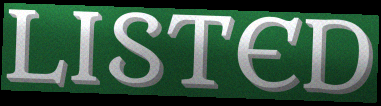
LISTED